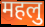
महलु